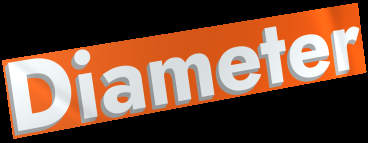
Diameter